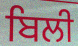
ਬਿਲੀ